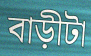
বাড়ীটা